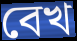
বেখ